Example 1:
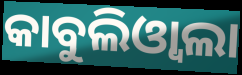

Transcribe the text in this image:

କାବୁଲିଓ୍ୱାଲା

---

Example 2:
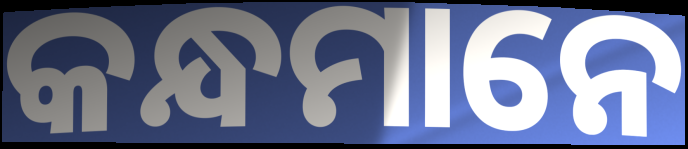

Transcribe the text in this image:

କନ୍ଧମାନେ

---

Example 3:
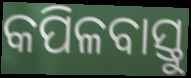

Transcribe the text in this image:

କପିଳବାସ୍ତୁ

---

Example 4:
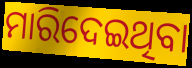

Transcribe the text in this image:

ମାରିଦେଇଥିବା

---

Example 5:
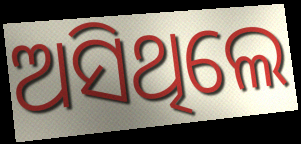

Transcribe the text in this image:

ଅସିଥିଲେ